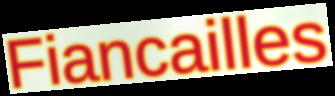
Fiancailles